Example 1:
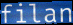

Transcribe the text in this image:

filan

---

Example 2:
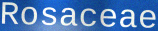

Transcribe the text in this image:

Rosaceae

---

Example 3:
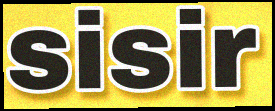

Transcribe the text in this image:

sisir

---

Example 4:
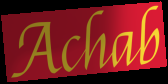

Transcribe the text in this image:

Achab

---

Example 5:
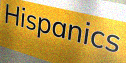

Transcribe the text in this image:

Hispanics